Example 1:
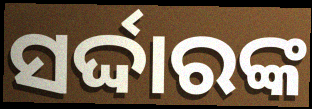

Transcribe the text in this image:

ସର୍ଦ୍ଦାରଙ୍କ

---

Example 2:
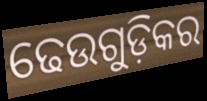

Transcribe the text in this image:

ଢେଉଗୁଡ଼ିକର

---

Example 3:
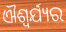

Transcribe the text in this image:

ଐଶ୍ଵର୍ଯ୍ୟର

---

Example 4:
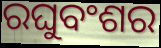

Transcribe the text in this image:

ରଘୁବଂଶର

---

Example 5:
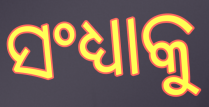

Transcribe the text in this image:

ସଂଧ୍ୟାକୁ